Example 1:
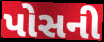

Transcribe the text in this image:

પોસની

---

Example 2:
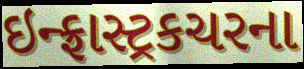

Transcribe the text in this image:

ઇન્ફ્રાસ્ટ્રકચરના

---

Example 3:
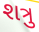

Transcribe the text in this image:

શત્રુ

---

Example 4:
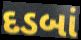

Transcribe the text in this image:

દડબાં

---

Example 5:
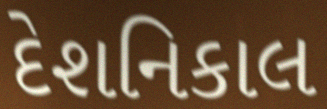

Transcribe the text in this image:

દેશનિકાલ